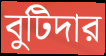
বুটিদার